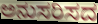
ಅನುಸರಿಸದ